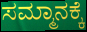
ಸಮ್ಮಾನಕ್ಕೆ